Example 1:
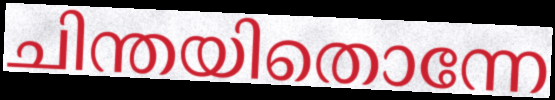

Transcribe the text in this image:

ചിന്തയിതൊന്നേ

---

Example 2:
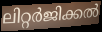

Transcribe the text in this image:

ലിറ്റർജിക്കൽ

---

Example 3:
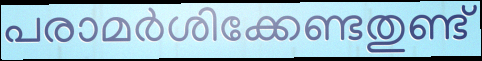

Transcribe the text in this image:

പരാമർശിക്കേണ്ടതുണ്ട്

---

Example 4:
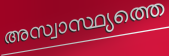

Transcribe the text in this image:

അസ്വാസ്ഥ്യത്തെ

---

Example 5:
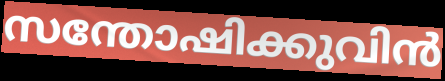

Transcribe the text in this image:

സന്തോഷിക്കുവിൻ